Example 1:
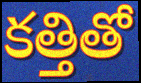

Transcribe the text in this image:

కత్తితో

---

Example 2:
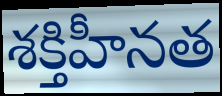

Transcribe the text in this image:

శక్తిహీనత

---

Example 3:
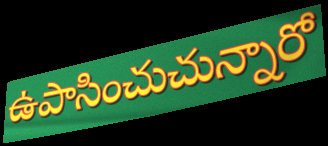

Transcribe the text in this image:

ఉపాసించుచున్నారో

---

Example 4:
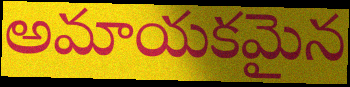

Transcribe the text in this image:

అమాయకమైన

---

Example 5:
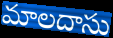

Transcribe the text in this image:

మాలదాసు